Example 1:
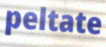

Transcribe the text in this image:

peltate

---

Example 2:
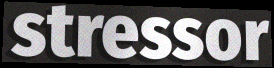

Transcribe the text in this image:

stressor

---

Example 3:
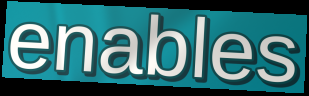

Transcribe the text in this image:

enables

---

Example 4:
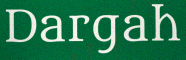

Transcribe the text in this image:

Dargah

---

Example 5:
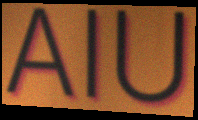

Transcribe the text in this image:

AIU